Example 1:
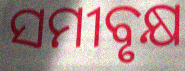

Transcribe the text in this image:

ସମୀବୃକ୍ଷ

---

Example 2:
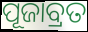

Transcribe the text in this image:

ପୂଜାବ୍ରତ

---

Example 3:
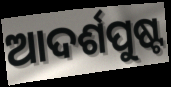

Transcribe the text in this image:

ଆଦର୍ଶପୁଷ୍ଟ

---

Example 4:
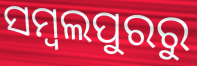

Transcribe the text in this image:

ସମ୍ବଲପୁରରୁ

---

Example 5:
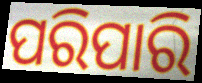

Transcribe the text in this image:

ପରିପାରି